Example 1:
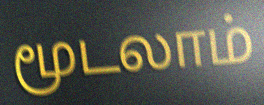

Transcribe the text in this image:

மூடலாம்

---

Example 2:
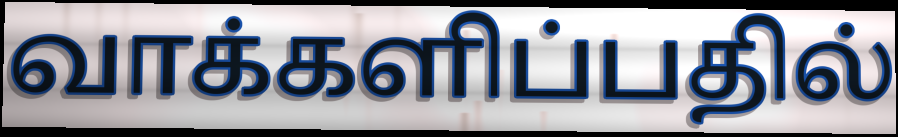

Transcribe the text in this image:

வாக்களிப்பதில்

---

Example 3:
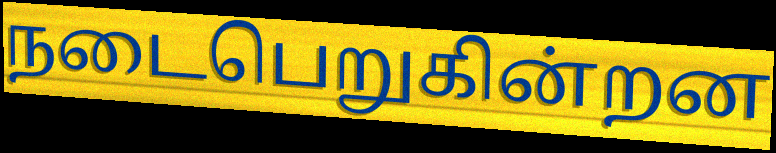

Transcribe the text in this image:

நடைபெறுகின்றன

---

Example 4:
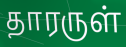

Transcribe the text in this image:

தாரருள்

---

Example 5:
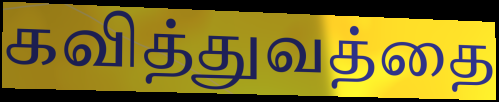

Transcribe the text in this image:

கவித்துவத்தை